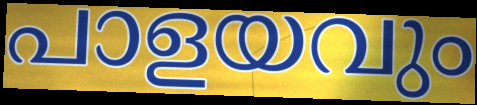
പാളയവും